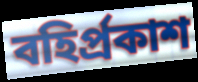
বহিৰ্প্ৰকাশ